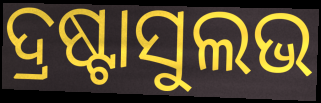
ଦ୍ରଷ୍ଟାସୁଲଭ